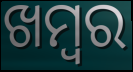
ଖମ୍ୱର